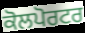
ਕੋਲਪੋਰਟਰ